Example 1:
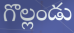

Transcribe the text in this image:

గొల్లండు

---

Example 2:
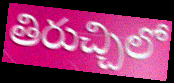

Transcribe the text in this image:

తిరుచ్చిలో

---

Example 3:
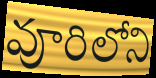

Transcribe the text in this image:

వూరిలోని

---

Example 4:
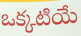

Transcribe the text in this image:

ఒక్కటియే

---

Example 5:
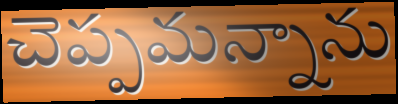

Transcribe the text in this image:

చెప్పమన్నాను